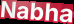
Nabha